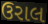
ઉરાલ